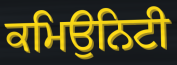
ਕਮਿਉਨਿਟੀ